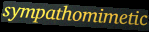
sympathomimetic